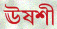
ঊষশী